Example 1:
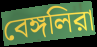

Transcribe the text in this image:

বেঙ্গলিরা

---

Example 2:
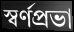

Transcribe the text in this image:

স্বর্ণপ্রভা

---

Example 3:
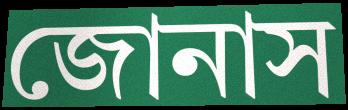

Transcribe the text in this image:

জোনাস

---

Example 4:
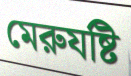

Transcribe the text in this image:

মেরুযষ্টি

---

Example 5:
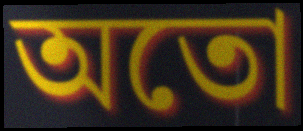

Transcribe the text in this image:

অতো